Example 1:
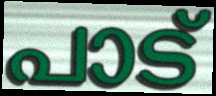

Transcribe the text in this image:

പാട്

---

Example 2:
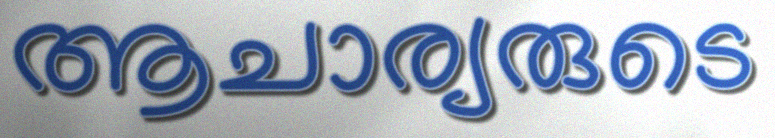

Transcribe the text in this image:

ആചാര്യരുടെ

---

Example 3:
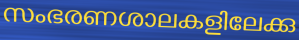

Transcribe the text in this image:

സംഭരണശാലകളിലേക്കു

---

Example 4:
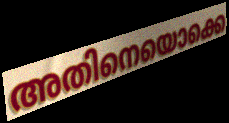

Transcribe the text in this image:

അതിനെയൊക്കെ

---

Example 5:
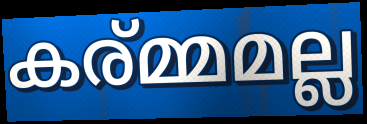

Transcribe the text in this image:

കര്മ്മമല്ല